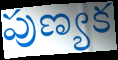
పుణ్యక